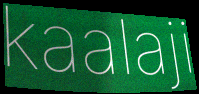
kaalaji